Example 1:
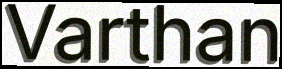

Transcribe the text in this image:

Varthan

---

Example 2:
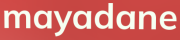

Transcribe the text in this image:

mayadane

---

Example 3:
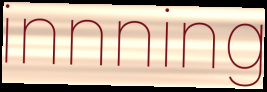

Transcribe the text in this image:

innning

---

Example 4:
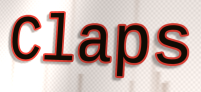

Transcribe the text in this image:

Claps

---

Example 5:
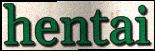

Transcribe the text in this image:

hentai